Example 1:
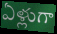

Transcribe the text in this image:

ఏళ్లుగా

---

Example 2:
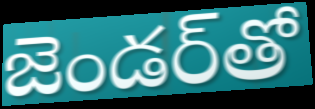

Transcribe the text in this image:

జెండర్‌తో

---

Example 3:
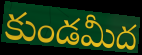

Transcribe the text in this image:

కుండమీద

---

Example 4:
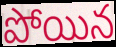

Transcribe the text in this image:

పోయిన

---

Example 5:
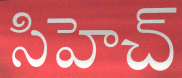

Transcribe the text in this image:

సిహెచ్